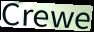
Crewe